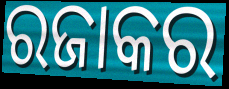
ରଜାକର